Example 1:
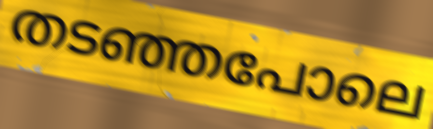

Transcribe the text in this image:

തടഞ്ഞപോലെ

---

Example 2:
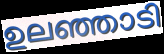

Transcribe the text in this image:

ഉലഞ്ഞാടി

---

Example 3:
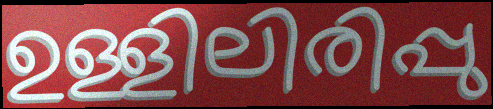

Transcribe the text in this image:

ഉള്ളിലിരിപ്പു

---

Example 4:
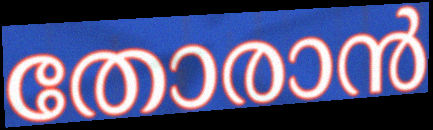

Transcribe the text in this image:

തോരാൻ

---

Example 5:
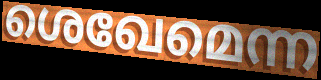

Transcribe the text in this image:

ശെഖേമെന്ന